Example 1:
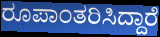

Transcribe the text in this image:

ರೂಪಾಂತರಿಸಿದ್ದಾರೆ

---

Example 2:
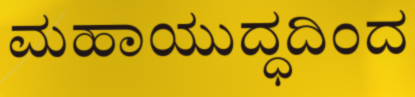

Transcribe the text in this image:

ಮಹಾಯುದ್ಧದಿಂದ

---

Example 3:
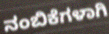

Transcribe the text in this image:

ನಂಬಿಕೆಗಳಾಗಿ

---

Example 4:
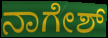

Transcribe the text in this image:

ನಾಗೇಶ್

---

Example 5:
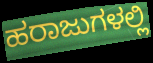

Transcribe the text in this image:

ಹರಾಜುಗಳಲ್ಲಿ